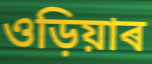
ওড়িয়াৰ